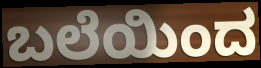
ಬಲೆಯಿಂದ